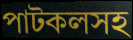
পাটকলসহ